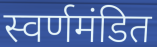
स्वर्णमंडित